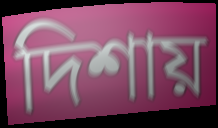
দিশায়